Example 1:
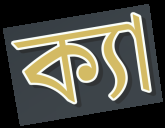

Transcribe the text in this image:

ক্যা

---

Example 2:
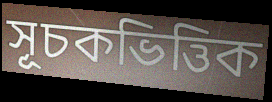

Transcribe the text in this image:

সূচকভিত্তিক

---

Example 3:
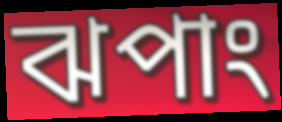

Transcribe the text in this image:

ঝপাং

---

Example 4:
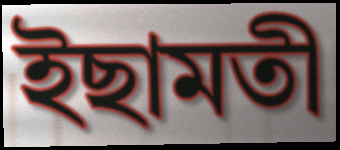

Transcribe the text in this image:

ইছামতী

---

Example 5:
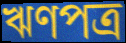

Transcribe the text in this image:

ঋণপত্র